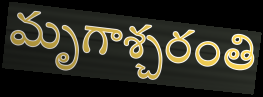
మృగాశ్చరంతి